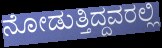
ನೋಡುತ್ತಿದ್ದವರಲ್ಲಿ